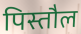
पिस्तौल